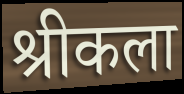
श्रीकला